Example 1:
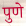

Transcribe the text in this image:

पुणे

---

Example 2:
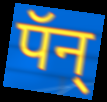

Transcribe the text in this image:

पॅन्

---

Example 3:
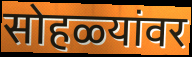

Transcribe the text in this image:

सोहळ्यांवर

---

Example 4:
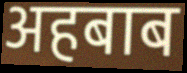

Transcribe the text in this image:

अहबाब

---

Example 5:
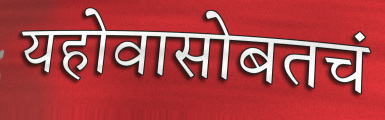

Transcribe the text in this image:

यहोवासोबतचं